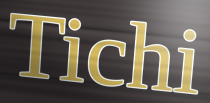
Tichi